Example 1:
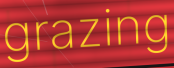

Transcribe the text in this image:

grazing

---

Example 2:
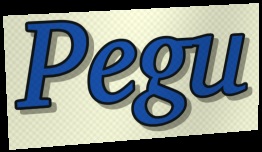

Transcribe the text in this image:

Pegu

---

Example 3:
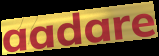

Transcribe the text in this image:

aadare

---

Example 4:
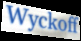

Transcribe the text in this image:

Wyckoff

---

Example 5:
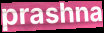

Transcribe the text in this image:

prashna